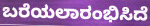
ಬರೆಯಲಾರಂಭಿಸಿದೆ